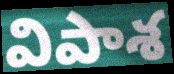
విపాశ